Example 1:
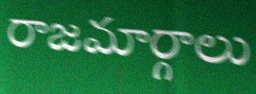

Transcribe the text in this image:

రాజమార్గాలు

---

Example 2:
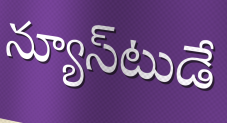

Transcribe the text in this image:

న్యూస్‌టుడే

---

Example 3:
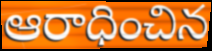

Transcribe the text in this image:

ఆరాధించిన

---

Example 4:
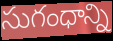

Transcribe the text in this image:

సుగంధాన్ని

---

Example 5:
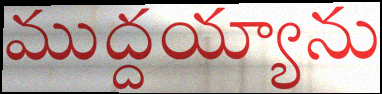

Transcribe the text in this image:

ముద్దయ్యాను